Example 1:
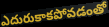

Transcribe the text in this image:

ఎదురుకాకపోవడంతో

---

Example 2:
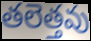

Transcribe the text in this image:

తలెత్తవు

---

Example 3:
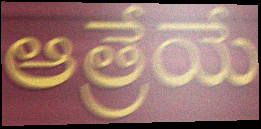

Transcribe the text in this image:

ఆత్రేయే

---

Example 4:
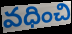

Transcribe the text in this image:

వధించి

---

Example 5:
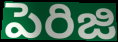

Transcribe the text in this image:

పెరిజి